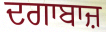
ਦਗਾਬਾਜ਼